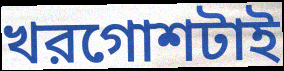
খরগোশটাই